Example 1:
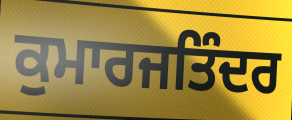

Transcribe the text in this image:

ਕੁਮਾਰਜਤਿੰਦਰ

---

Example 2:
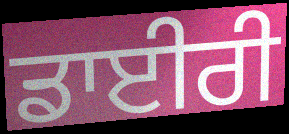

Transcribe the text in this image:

ਡਾਈਰੀ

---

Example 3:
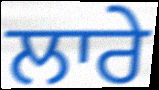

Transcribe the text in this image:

ਲਾਰੇ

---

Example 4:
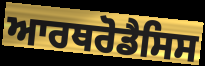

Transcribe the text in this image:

ਆਰਥਰੋਡੈਸਿਸ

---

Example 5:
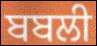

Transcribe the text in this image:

ਬਬਲੀ